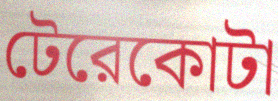
টেরেকোটা